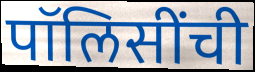
पॉलिसींची